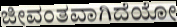
ಜೀವಂತವಾಗಿದೆಯೋ